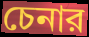
চেনার